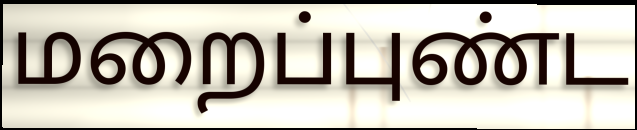
மறைப்புண்ட